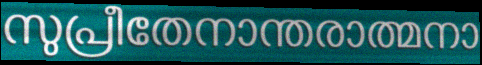
സുപ്രീതേനാന്തരാത്മനാ